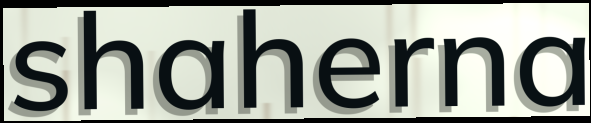
shaherna